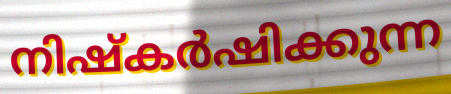
നിഷ്കർഷിക്കുന്ന